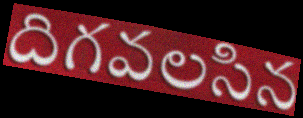
దిగవలసిన